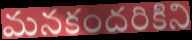
మనకందరికిని